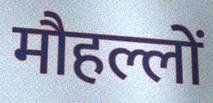
मौहल्लों